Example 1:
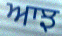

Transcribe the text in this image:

ਆਝ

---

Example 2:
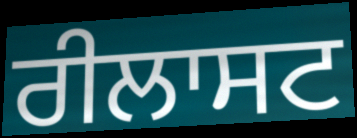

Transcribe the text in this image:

ਰੀਲਾਸਟ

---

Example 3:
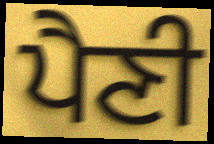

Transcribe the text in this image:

ਪੈਣੀ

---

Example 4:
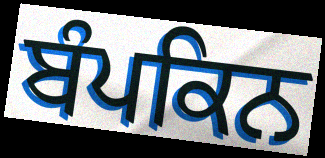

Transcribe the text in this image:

ਬੰਪਕਿਨ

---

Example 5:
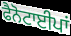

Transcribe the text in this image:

ਫੈਨੋਟਾਈਪਾਂ